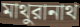
মাথুরানাথ